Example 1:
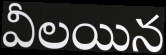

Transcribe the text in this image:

వీలయిన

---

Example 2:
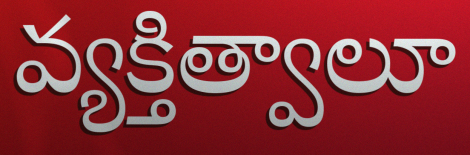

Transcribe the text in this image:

వ్యక్తిత్వాలూ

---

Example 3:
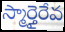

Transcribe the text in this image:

స్మార్తైరేవ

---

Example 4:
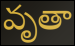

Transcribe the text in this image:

వృతా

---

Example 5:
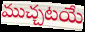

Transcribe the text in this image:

ముచ్చటయే